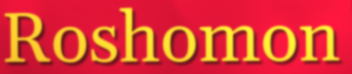
Roshomon